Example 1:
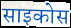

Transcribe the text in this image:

साइकोस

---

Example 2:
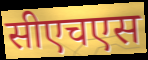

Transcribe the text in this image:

सीएचएस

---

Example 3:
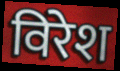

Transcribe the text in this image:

विरेश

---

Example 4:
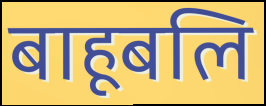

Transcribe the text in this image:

बाहूबलि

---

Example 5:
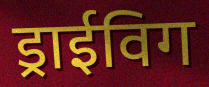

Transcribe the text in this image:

ड्राईविग